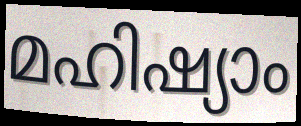
മഹിഷ്യാം